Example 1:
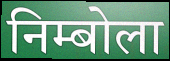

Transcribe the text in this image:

निम्बोला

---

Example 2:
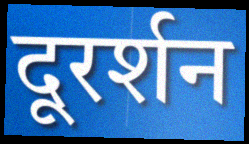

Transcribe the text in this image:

दूरर्शन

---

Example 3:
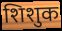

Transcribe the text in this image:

शिशुक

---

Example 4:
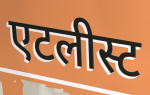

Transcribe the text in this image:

एटलीस्ट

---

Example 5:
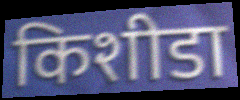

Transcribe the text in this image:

किशीडा